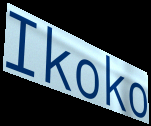
Ikoko